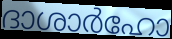
ദാശാർഹോ